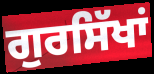
ਗੁਰਸਿੱਖਾਂ